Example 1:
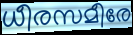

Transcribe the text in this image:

ധീരസമീരേ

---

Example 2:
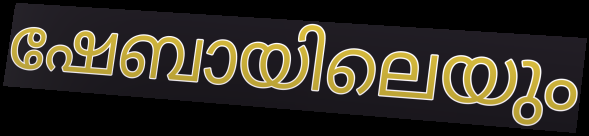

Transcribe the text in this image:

ഷേബായിലെയും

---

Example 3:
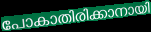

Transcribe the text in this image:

പോകാതിരിക്കാനായി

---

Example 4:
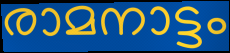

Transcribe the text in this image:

രാമനാട്ടം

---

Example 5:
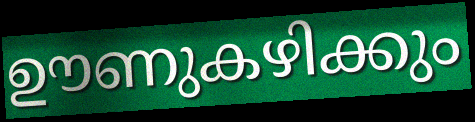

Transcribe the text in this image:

ഊണുകഴിക്കും